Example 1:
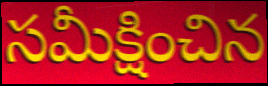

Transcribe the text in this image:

సమీక్షించిన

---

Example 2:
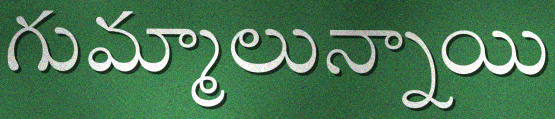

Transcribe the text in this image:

గుమ్మాలున్నాయి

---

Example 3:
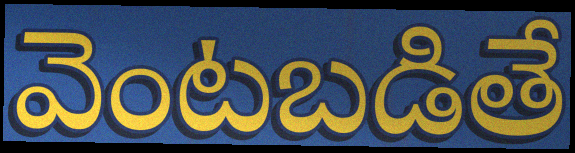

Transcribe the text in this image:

వెంటబడితే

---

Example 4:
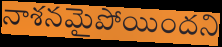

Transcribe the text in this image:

నాశనమైపోయిందని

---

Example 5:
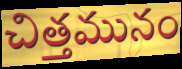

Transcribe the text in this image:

చిత్తమునం